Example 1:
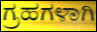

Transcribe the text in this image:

ಗ್ರಹಗಳಾಗಿ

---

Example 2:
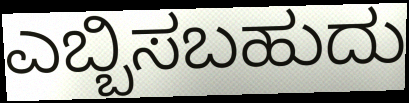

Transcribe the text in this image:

ಎಬ್ಬಿಸಬಹುದು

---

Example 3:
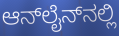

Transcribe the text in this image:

ಆನ್‌ಲೈನ್‌ನಲ್ಲಿ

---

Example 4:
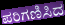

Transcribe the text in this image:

ಪರಿಗಣಿಸಿದ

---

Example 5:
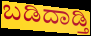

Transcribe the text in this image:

ಬಡಿದಾಡ್ತಿ